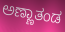
ಅಣ್ಣಾತಂಡ